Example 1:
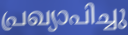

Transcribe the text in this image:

പ്രഖ്യാപിച്ചു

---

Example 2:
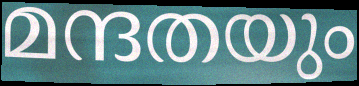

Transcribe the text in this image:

മന്ദതയും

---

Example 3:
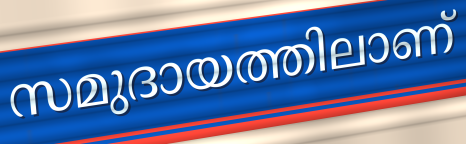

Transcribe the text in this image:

സമുദായത്തിലാണ്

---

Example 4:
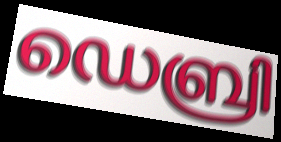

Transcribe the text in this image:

ഡെബ്രി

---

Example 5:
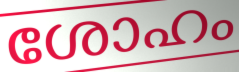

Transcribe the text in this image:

ശോഹം